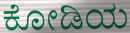
ಕೋಡಿಯ